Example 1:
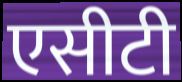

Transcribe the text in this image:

एसीटी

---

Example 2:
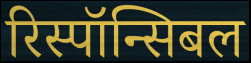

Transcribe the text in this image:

रिस्पॉन्सिबल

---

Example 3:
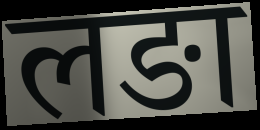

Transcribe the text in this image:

लङा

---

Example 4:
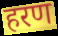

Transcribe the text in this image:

हरण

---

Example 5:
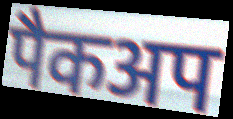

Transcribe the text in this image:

पैकअप